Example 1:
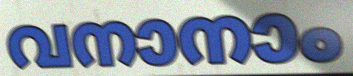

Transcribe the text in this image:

വനാനാം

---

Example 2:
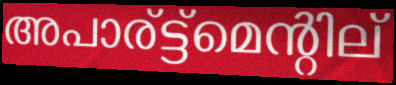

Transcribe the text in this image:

അപാര്ട്ട്മെന്റില്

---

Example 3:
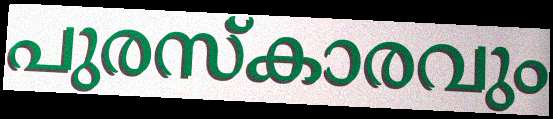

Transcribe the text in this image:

പുരസ്കാരവും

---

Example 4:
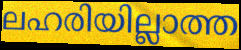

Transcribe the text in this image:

ലഹരിയില്ലാത്ത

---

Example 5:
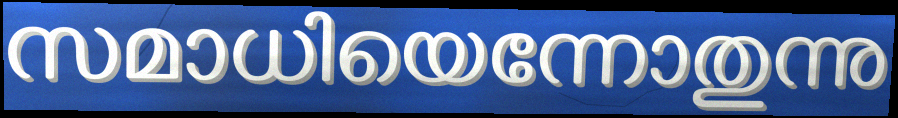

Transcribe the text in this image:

സമാധിയെന്നോതുന്നു